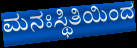
ಮನಃಸ್ಥಿತಿಯಿಂದ